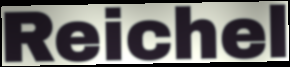
Reichel